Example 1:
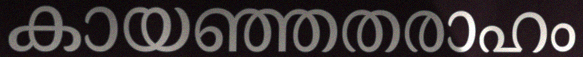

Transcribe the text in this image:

കായഞ്ഞതരാഹം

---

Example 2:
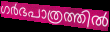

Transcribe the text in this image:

ഗർഭപാത്രത്തിൽ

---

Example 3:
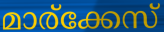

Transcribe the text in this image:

മാര്ക്കേസ്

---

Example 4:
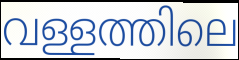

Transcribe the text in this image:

വള്ളത്തിലെ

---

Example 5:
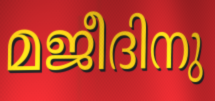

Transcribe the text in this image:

മജീദിനു